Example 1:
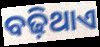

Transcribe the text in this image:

ବଢ଼ିଥାଏ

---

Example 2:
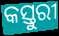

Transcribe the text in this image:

କସ୍ତୁରୀ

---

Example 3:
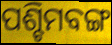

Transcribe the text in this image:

ପଶ୍ଚିମବଙ୍ଗ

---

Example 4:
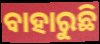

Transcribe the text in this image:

ବାହାରୁଛି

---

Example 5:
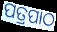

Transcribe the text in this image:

ପତ୍ରପାଠ